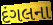
દંગલના